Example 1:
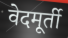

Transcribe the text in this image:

वेदमूर्ती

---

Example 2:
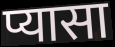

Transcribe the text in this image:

प्यासा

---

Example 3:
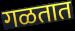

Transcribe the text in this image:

गळतात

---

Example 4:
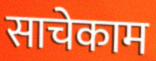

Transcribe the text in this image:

साचेकाम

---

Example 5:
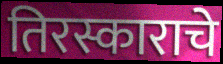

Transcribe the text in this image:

तिरस्काराचे